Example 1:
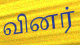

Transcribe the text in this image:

வினர்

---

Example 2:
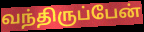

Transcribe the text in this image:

வந்திருப்பேன்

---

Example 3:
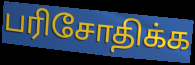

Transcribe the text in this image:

பரிசோதிக்க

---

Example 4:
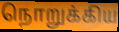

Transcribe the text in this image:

நொறுக்கிய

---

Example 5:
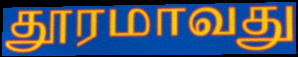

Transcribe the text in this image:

தூரமாவது